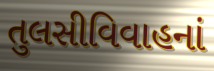
તુલસીવિવાહનાં